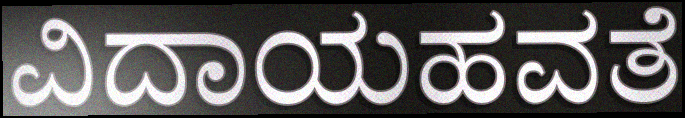
ವಿದಾಯಹವತೆ